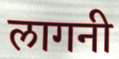
लागनी